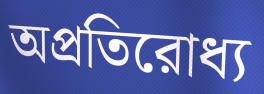
অপ্রতিরোধ্য